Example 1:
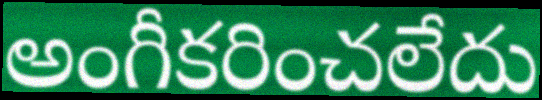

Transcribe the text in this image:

అంగీకరించలేదు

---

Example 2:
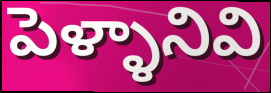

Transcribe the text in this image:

పెళ్ళానివి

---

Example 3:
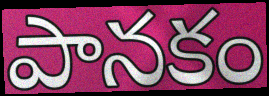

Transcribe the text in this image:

పానకం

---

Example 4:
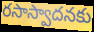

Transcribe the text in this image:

రసాస్వాదనకు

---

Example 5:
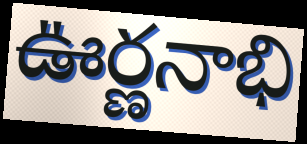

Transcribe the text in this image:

ఊర్ణనాభి